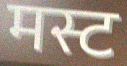
मस्‍ट